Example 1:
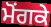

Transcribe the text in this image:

ਮੋਂਗਕੇ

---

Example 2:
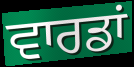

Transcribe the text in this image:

ਵਾਰਡਾਂ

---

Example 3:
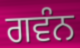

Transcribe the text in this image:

ਗਵੰਨ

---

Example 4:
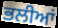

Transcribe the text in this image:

ਭਲੀਆਂ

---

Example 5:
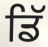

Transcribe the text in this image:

ਡਿੱ